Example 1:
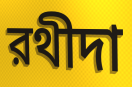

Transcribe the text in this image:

রথীদা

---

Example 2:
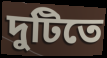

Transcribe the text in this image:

দুটিতে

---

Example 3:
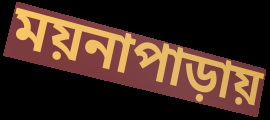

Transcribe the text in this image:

ময়নাপাড়ায়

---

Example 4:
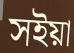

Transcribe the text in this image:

সইয়া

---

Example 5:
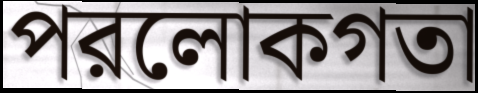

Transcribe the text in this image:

পরলোকগতা